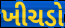
ખીચડો